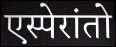
एस्पेरांतो